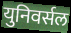
युनिवर्सल